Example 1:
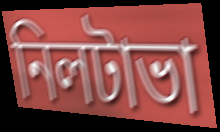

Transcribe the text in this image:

নিলটাভা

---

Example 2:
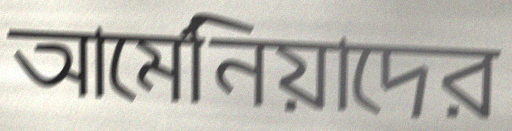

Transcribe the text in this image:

আর্মেনিয়াদের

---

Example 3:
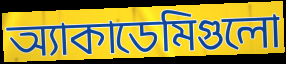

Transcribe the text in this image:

অ্যাকাডেমিগুলো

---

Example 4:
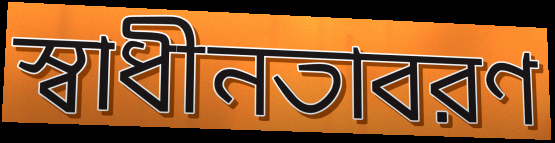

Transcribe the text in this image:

স্বাধীনতাবরণ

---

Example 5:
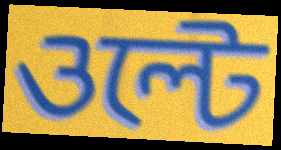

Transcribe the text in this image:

ওল্টে